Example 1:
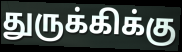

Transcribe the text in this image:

துருக்கிக்கு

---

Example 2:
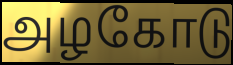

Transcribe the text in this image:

அழகோடு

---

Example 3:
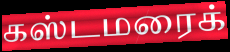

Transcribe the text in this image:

கஸ்டமரைக்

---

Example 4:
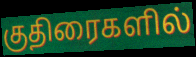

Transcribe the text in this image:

குதிரைகளில்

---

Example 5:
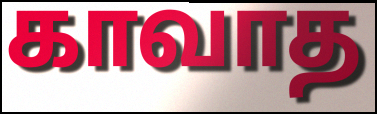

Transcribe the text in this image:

காவாத